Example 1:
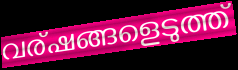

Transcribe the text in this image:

വര്ഷങ്ങളെടുത്ത്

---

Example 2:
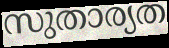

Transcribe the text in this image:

സുതാര്യത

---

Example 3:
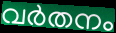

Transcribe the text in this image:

വർതനം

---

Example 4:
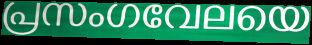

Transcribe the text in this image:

പ്രസംഗവേലയെ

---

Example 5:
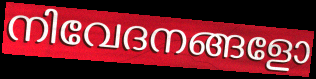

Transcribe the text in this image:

നിവേദനങ്ങളോ